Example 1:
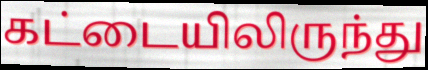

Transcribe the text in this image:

கட்டையிலிருந்து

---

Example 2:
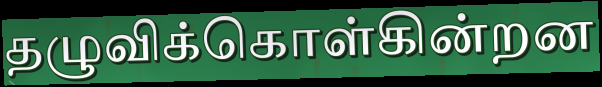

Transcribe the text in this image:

தழுவிக்கொள்கின்றன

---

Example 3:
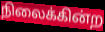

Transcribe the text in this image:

நிலைக்கின்ற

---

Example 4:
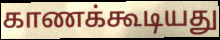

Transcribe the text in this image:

காணக்கூடியது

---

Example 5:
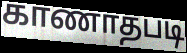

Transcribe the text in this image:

காணாதபடி